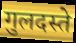
गुलदस्ते